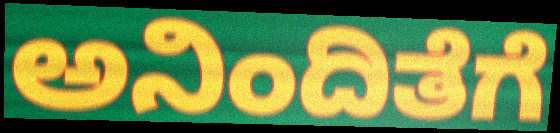
ಅನಿಂದಿತೆಗೆ